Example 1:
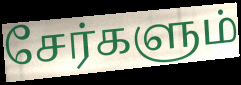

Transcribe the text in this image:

சேர்களும்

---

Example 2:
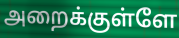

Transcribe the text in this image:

அறைக்குள்ளே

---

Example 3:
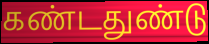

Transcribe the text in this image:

கண்டதுண்டு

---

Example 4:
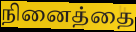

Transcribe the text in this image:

நினைத்தை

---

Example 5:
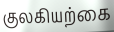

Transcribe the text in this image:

குலகியற்கை